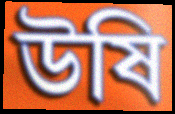
উষি